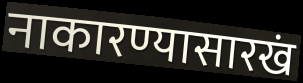
नाकारण्यासारखं